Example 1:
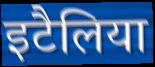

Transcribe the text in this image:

इटैलिया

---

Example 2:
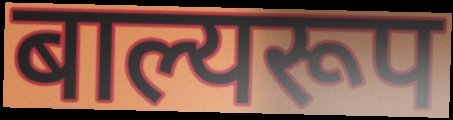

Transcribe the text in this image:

बाल्यरूप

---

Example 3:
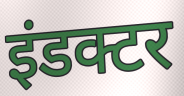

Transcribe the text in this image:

इंडक्टर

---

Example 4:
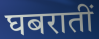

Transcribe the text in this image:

घबरातीं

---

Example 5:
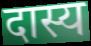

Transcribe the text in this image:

दास्य